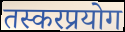
तस्करप्रयोग